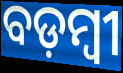
ବଡ଼ମ୍ବୀ